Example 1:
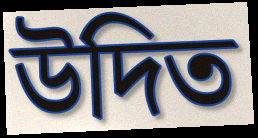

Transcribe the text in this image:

উদিত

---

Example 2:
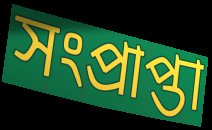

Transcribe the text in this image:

সংপ্রাপ্তা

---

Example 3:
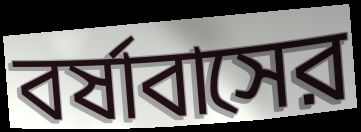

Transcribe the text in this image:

বর্ষাবাসের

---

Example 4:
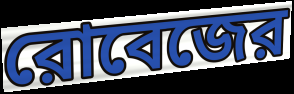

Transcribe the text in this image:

রোবেজের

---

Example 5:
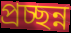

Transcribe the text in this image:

প্রচ্ছন্ন